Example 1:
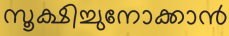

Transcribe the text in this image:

സൂക്ഷിച്ചുനോക്കാൻ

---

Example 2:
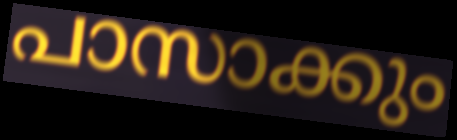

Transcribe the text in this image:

പാസാക്കും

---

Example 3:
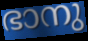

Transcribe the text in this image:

ഭാനു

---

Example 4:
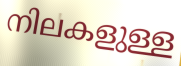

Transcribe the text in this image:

നിലകളുള്ള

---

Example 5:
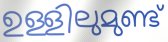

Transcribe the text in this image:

ഉള്ളിലുമുണ്ട്